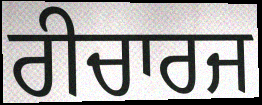
ਰੀਚਾਰਜ